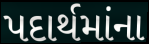
પદાર્થમાંના